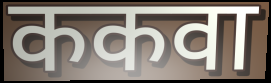
ककवा